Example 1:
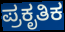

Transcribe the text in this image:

ಪ್ರಕೃತಿಕ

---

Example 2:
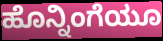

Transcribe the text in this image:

ಹೊನ್ನಿಂಗೆಯೂ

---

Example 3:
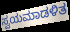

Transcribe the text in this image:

ಸ್ವಯಮಾಡಳಿತ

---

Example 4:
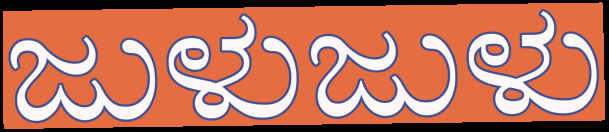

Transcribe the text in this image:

ಜುಳುಜುಳು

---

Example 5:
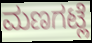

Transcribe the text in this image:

ಮಣಗಟ್ಲೆ